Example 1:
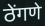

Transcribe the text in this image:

ठेंगणे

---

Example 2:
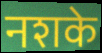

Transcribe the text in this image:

नशके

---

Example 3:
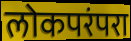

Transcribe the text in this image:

लोकपरंपरा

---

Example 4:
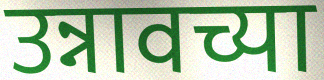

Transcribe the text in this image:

उन्नावच्या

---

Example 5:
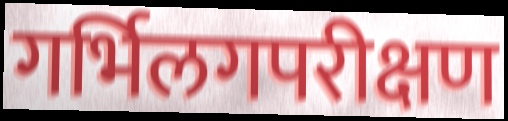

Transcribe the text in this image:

गर्भिलगपरीक्षण